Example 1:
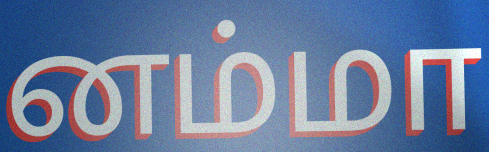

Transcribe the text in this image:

னம்மா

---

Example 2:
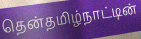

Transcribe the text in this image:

தென்தமிழ்நாட்டின்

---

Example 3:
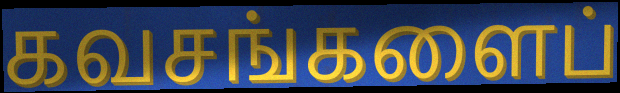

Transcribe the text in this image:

கவசங்களைப்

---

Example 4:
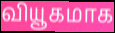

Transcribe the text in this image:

வியூகமாக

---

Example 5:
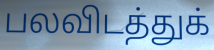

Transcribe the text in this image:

பலவிடத்துக்